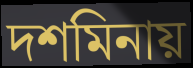
দশমিনায়